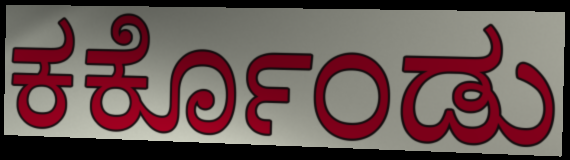
ಕರ್ಕೊಂಡು